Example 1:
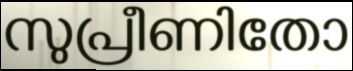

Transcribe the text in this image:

സുപ്രീണിതോ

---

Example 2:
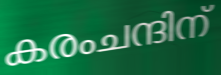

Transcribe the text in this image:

കരംചന്ദിന്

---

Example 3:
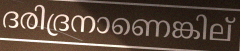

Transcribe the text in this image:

ദരിദ്രനാണെങ്കില്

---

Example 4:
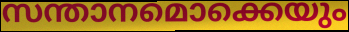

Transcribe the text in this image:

സന്താനമൊക്കെയും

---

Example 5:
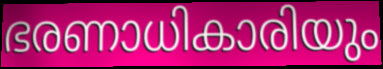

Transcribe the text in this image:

ഭരണാധികാരിയും